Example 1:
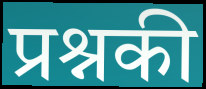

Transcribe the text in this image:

प्रश्नकी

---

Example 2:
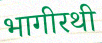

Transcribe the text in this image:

भागीरथी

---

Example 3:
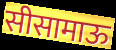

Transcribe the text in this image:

सीसामाऊ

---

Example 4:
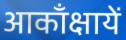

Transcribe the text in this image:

आकाँक्षायें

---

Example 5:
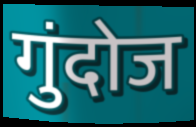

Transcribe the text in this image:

गुंदोज